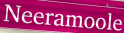
Neeramoole